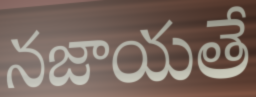
నజాయతే